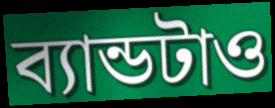
ব্যান্ডটাও